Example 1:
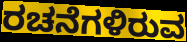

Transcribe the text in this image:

ರಚನೆಗಳಿರುವ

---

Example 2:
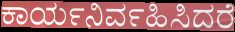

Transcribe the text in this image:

ಕಾರ್ಯನಿರ್ವಹಿಸಿದರೆ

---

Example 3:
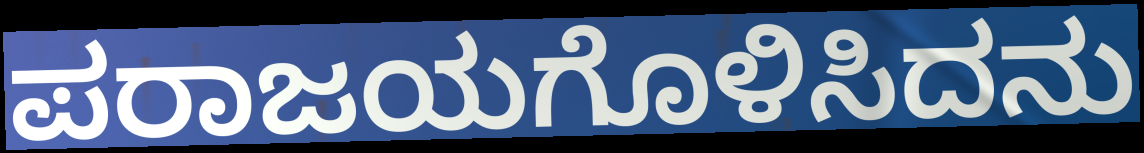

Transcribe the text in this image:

ಪರಾಜಯಗೊಳಿಸಿದನು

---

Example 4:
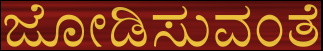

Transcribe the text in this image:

ಜೋಡಿಸುವಂತೆ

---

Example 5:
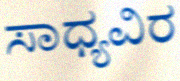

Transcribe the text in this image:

ಸಾಧ್ಯವಿರ